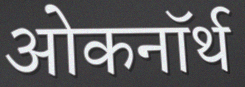
ओकनॉर्थ